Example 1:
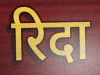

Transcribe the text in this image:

रिदा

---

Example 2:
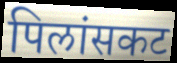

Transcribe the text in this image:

पिलांसकट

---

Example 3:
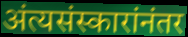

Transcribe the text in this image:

अंत्यसंस्कारांनंतर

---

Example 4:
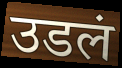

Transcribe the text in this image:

उडलं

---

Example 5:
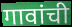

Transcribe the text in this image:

गावांची